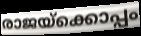
രാജയ്ക്കൊപ്പം